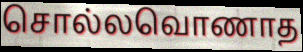
சொல்லவொணாத